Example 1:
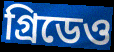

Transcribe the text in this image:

গ্রিডেও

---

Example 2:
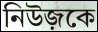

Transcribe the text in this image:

নিউজ়কে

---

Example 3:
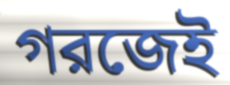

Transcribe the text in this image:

গরজেই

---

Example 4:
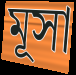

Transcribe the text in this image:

মূসা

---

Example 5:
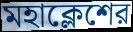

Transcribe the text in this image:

মহাক্লেশের